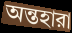
অন্তহারা